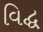
વિદ્ઘ